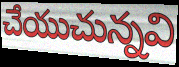
చేయుచున్నవి